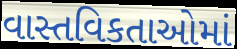
વાસ્તવિકતાઓમાં